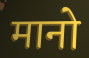
मानो